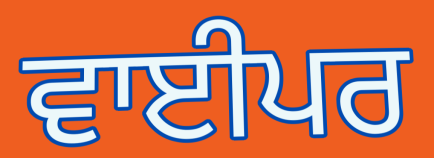
ਵਾਈਪਰ